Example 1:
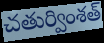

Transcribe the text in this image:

చతుర్వింశత్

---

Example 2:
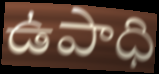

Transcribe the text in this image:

ఉపాధి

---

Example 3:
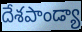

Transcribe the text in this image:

దేశపాండ్యా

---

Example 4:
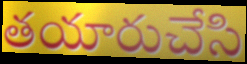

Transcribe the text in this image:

తయారుచేసి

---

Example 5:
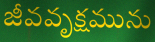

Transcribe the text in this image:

జీవవృక్షమును